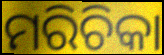
ମରିଚିକା